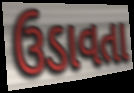
ઉડાવતા